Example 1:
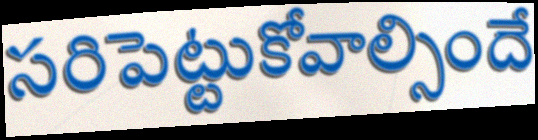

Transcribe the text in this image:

సరిపెట్టుకోవాల్సిందే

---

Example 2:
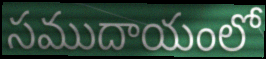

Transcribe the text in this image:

సముదాయంలో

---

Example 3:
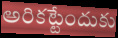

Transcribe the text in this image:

అరికట్టేందుకు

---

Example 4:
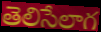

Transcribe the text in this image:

తెలిసేలాగ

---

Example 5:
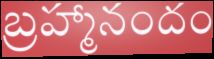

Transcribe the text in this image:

బ్రహ్మానందం